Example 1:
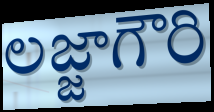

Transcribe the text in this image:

లజ్జాగౌరి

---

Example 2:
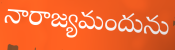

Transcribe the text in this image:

నారాజ్యమందును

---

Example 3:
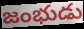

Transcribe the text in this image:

జంభుడు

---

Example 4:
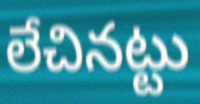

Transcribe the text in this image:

లేచినట్టు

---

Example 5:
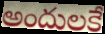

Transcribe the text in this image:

అందులకే